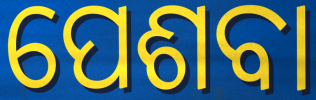
ପେଶବା